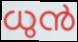
ധുൻ